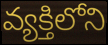
వ్యక్తిలోని